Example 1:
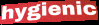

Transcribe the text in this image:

hygienic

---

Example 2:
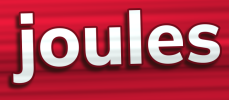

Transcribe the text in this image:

joules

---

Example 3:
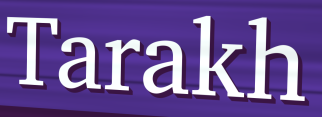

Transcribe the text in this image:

Tarakh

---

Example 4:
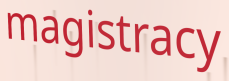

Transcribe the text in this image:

magistracy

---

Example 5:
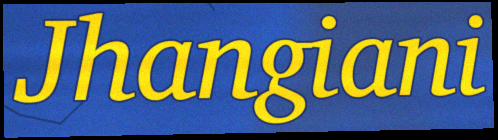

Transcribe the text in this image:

Jhangiani